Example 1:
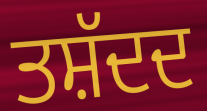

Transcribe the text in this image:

ਤਸ਼ੱਦਦ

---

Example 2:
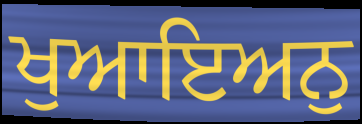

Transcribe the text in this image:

ਖੁਆਇਅਨੁ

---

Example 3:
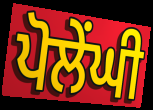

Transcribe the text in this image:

ਪੋਲੇਂਘੀ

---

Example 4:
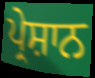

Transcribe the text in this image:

ਪ੍ਰੇਸ਼ਾਨ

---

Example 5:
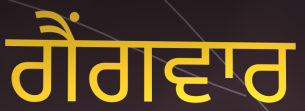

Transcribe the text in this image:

ਗੈਂਗਵਾਰ